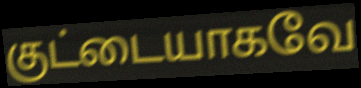
குட்டையாகவே